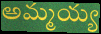
అమ్మయ్య